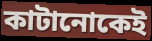
কাটানোকেই